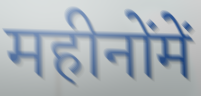
महीनोंमें